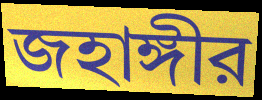
জহাঙ্গীর